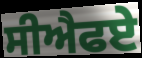
ਸੀਐਫਏ